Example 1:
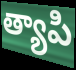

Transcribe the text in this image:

త్యాపి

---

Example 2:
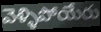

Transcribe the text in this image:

వెళ్ళిపోయేరు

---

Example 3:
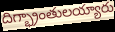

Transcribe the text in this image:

దిగ్భ్రాంతులయ్యారు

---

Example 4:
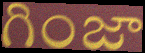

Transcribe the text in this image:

గింజా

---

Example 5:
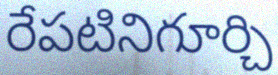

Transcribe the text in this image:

రేపటినిగూర్చి